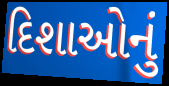
દિશાઓનું